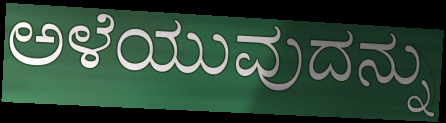
ಅಳೆಯುವುದನ್ನು